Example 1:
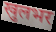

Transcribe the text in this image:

खुलभर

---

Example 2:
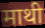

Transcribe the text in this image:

माथी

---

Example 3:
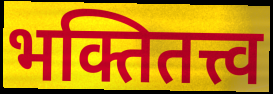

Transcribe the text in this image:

भक्तितत्त्व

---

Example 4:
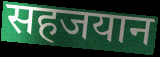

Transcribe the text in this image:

सहजयान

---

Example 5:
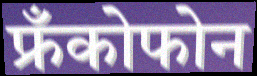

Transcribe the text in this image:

फ्रँकोफोन